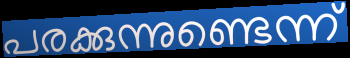
പരക്കുന്നുണ്ടെന്ന്